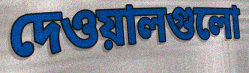
দেওয়ালগুলো